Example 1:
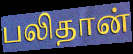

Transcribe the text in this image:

பலிதான்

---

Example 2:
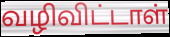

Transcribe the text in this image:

வழிவிட்டாள்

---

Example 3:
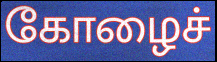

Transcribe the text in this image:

கோழைச்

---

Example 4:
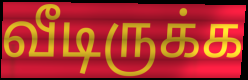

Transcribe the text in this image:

வீடிருக்க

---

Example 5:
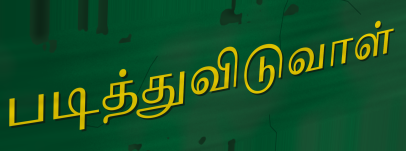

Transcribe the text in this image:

படித்துவிடுவாள்